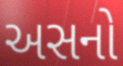
અસનો